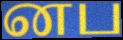
னப